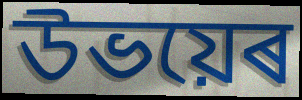
উভয়েৰ